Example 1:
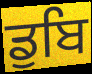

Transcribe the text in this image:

ਡੁਬਿ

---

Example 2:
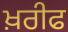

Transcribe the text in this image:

ਖ਼ਰੀਫ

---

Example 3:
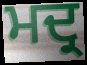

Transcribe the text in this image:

ਮਦ੍ਰ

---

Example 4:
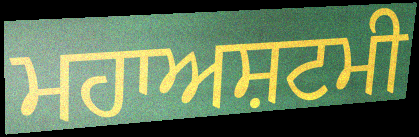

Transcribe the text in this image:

ਮਹਾਅਸ਼ਟਮੀ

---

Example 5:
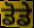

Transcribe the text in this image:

ਡੋਡੇ